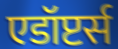
एडॉप्टर्स